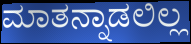
ಮಾತನ್ನಾಡಲಿಲ್ಲ